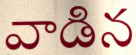
వాడిన